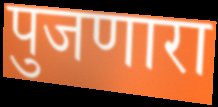
पुजणारा